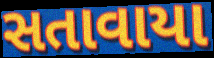
સતાવાયા